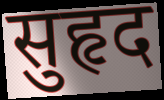
सुहृद